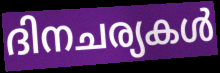
ദിനചര്യകൾ